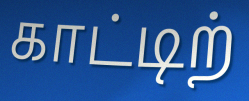
காட்டிற்